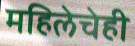
महिलेचेही